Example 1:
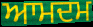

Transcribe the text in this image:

ਆਮਦਮ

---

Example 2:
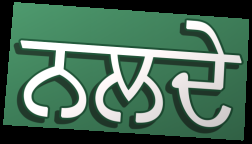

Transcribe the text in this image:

ਨਲਦੇ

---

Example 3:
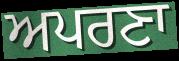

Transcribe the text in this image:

ਅਪਰਣਾ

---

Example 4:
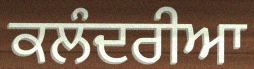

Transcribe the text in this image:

ਕਲੰਦਰੀਆ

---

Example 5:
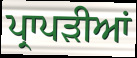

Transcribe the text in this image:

ਪ੍ਰਾਪੜੀਆਂ